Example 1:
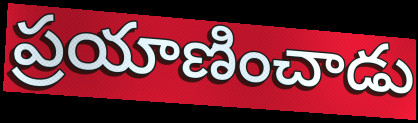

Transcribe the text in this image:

ప్రయాణించాడు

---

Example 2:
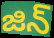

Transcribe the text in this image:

జిన్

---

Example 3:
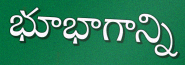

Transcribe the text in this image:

భూభాగాన్ని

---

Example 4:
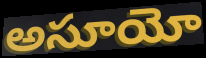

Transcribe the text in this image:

అసూయో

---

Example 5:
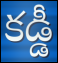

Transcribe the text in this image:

కడ్డీ